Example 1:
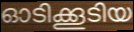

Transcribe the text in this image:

ഓടിക്കൂടിയ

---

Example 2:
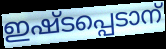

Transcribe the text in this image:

ഇഷ്ടപ്പെടാന്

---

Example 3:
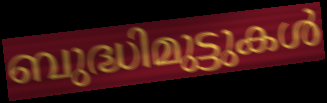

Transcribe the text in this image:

ബുദ്ധിമുട്ടുകൾ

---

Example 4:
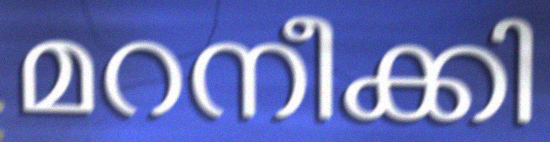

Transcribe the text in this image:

മറനീക്കി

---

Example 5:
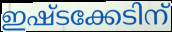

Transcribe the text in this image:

ഇഷ്ടക്കേടിന്